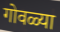
गोवळ्या